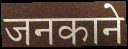
जनकाने